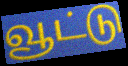
வூட்டு